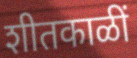
शीतकाळीं